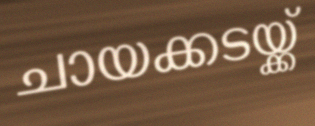
ചായക്കടയ്ക്ക്